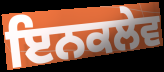
ਇਨਕਲੇਵ